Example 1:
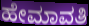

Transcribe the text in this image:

ಹೇಮಾವತಿ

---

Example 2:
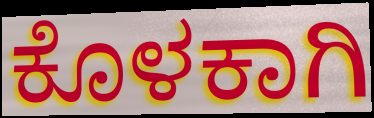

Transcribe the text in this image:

ಕೊಳಕಾಗಿ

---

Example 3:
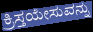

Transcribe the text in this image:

ಕ್ರಿಸ್ತಯೇಸುವನ್ನು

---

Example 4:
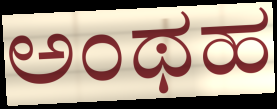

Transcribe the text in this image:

ಅಂಥಹ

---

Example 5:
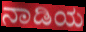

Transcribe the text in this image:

ನಾಡಿಯ